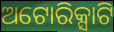
ଅଟୋରିକ୍ସାଟି